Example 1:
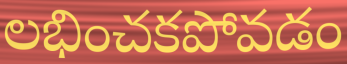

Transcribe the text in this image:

లభించకపోవడం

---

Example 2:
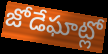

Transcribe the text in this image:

జోడేఘాట్లో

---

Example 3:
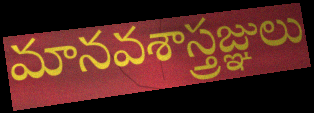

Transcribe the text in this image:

మానవశాస్త్రజ్ఞులు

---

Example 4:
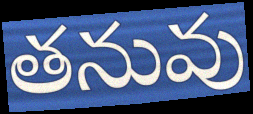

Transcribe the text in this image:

తనువు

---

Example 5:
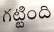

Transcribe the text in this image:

గట్టింది